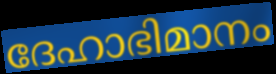
ദേഹാഭിമാനം